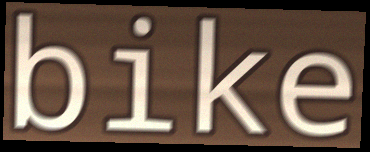
bike